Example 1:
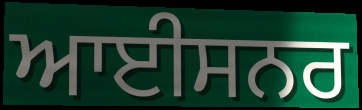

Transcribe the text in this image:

ਆਈਸਨਰ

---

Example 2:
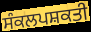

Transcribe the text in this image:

ਸੰਕਲਪਸ਼ਕਤੀ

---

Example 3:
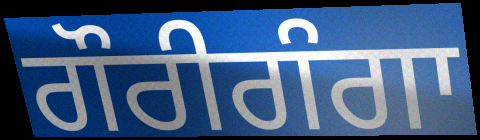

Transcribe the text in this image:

ਗੌਰੀਗੰਗਾ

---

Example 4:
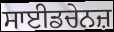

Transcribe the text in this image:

ਸਾਈਡਚੇਨਜ਼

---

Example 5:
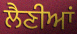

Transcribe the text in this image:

ਲੈਣੀਆਂ